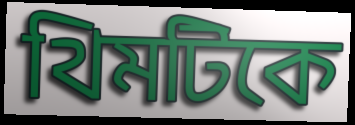
থিমটিকে